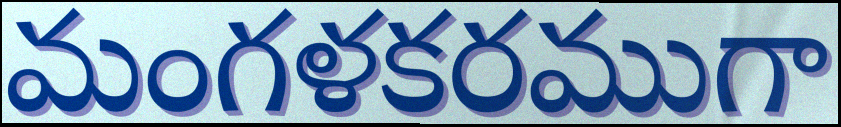
మంగళకరముగా